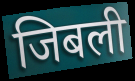
जिबली